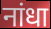
नांधा